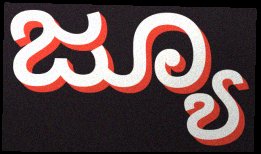
ಜ್ಯೂ